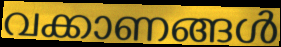
വക്കാണങ്ങൾ